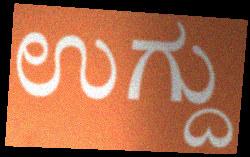
ಉಗ್ದು